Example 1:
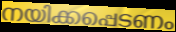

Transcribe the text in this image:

നയിക്കപ്പെടണം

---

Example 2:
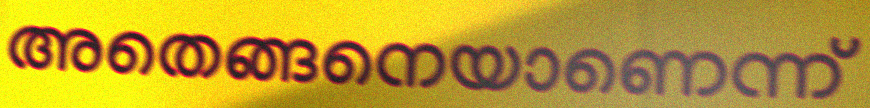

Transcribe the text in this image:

അതെങ്ങനെയാണെന്ന്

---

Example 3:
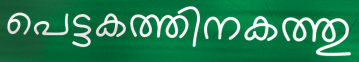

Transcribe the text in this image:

പെട്ടകത്തിനകത്തു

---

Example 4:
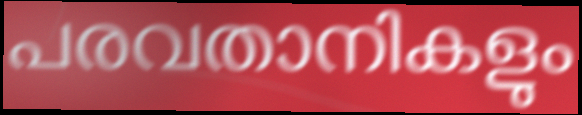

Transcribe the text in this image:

പരവതാനികളും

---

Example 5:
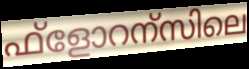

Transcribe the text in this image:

ഫ്ളോറന്സിലെ